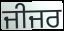
ਜੀਜਰ